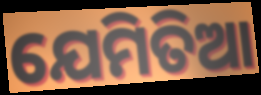
ଯେମିତିଆ